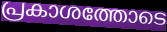
പ്രകാശത്തോടെ